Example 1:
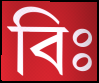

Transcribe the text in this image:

বিঃ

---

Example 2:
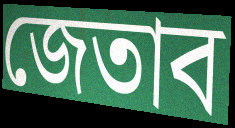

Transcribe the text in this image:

জেতাব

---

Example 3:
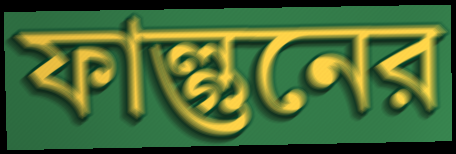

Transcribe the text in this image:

ফাল্গুনের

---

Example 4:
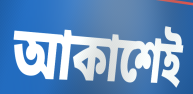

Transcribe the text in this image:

আকাশেই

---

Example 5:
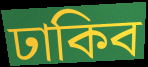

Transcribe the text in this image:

ঢাকিব